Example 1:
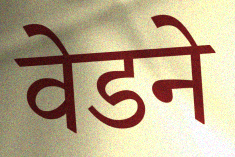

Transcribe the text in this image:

वेडने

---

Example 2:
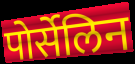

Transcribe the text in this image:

पोर्सेलिन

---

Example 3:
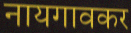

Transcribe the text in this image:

नायगावकर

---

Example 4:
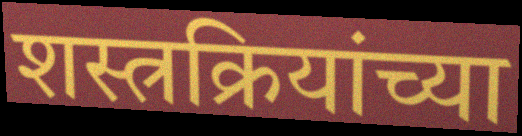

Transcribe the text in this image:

शस्त्रक्रियांच्या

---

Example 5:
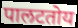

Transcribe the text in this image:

पालटतोय